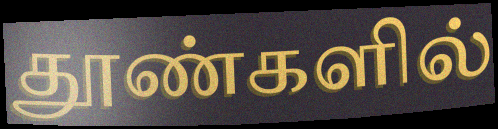
தூண்களில்